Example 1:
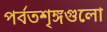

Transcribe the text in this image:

পর্বতশৃঙ্গগুলো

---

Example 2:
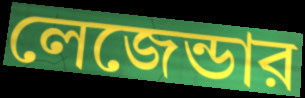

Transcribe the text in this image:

লেজেন্ডার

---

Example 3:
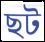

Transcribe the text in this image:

ছট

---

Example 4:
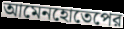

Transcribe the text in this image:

আমেনহোতেপের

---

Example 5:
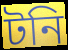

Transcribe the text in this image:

টনি